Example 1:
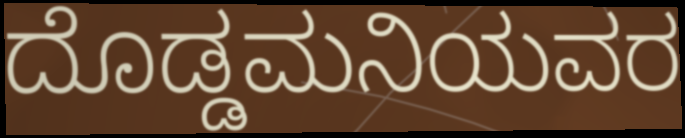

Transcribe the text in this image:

ದೊಡ್ಡಮನಿಯವರ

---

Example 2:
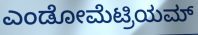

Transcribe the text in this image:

ಎಂಡೋಮೆಟ್ರಿಯಮ್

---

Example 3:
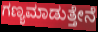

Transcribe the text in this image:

ಗಣ್ಯಮಾಡುತ್ತೇನೆ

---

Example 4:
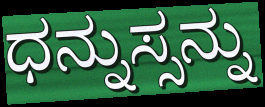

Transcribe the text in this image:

ಧನ್ನುಸ್ಸನ್ನು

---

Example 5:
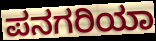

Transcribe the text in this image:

ಪನಗರಿಯಾ